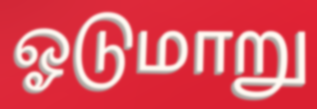
ஓடுமாறு